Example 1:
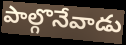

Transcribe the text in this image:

పాల్గొనేవాడు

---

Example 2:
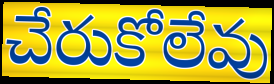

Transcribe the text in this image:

చేరుకోలేవు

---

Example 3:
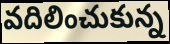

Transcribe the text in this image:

వదిలించుకున్న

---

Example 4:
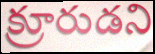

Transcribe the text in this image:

క్రూరుడని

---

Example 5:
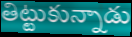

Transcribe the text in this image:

తిట్టుకున్నాడు